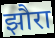
झौरा